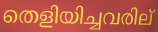
തെളിയിച്ചവരില്